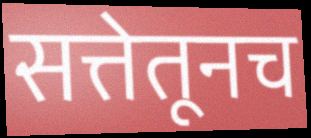
सत्तेतूनच